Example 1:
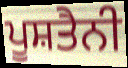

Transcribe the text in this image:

ਪੂਸ਼ਤੈਨੀ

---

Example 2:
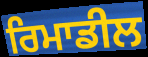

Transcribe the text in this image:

ਰਿਮਾਡੀਲ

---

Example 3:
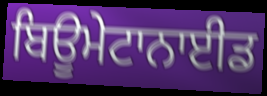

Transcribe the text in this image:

ਬਿਊਮੇਟਾਨਾਈਡ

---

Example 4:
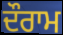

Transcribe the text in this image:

ਦੌਰਾਮ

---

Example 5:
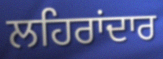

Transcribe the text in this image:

ਲਹਿਰਾਂਦਾਰ